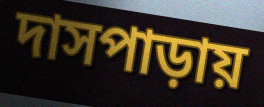
দাসপাড়ায়